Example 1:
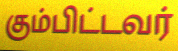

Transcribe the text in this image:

கும்பிட்டவர்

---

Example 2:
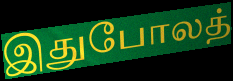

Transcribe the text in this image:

இதுபோலத்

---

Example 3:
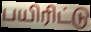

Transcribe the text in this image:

பயிரிட்டு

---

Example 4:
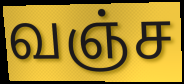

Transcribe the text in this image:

வஞ்ச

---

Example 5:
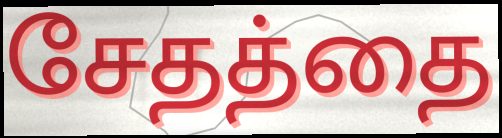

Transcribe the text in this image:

சேதத்தை